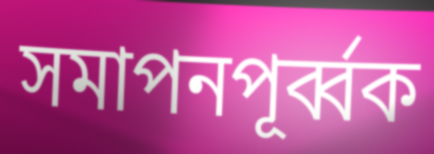
সমাপনপূর্ব্বক